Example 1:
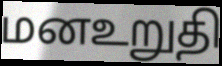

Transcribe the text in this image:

மனஉறுதி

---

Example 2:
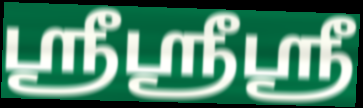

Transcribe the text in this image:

ஸ்ரீஸ்ரீஸ்ரீ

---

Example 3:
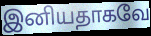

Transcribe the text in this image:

இனியதாகவே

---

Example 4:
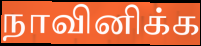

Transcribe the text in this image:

நாவினிக்க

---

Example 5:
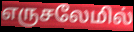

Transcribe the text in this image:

எருசலேமில்